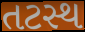
તટસ્થ